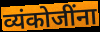
व्यंकोजींना